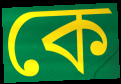
কে